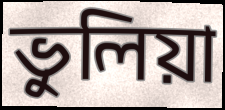
ভুলিয়া